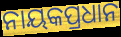
ନାୟକପ୍ରଧାନ